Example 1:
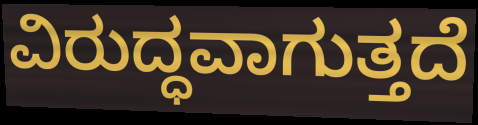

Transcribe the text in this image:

ವಿರುದ್ಧವಾಗುತ್ತದೆ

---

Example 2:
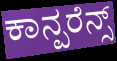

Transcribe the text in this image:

ಕಾನ್ಪರೆನ್ಸ್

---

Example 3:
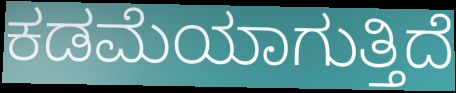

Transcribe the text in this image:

ಕಡಮೆಯಾಗುತ್ತಿದೆ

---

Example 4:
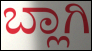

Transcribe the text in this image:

ಬ್ಲಾಗಿ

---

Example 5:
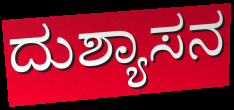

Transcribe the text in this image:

ದುಶ್ಯಾಸನ